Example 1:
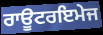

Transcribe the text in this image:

ਰਾਊਟਰਇਮੇਜ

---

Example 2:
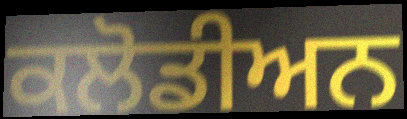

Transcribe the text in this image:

ਕਲੋਡੀਅਨ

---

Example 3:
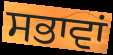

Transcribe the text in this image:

ਸਭਾਵਾਂ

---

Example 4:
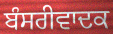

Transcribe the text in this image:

ਬੰਸਰੀਵਾਦਕ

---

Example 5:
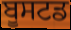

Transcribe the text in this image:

ਬੂਸਟਡ